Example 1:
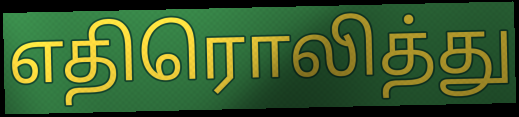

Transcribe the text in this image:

எதிரொலித்து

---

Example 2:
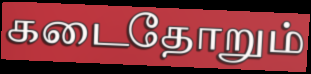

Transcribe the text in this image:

கடைதோறும்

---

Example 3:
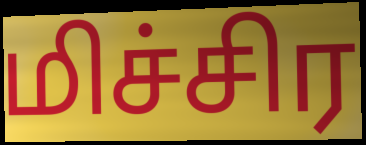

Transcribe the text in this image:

மிச்சிர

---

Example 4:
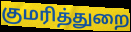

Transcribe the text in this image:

குமரித்துறை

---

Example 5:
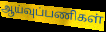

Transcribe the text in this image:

ஆய்வுப்பணிகள்